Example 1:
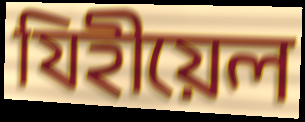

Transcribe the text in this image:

যিহীয়েল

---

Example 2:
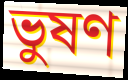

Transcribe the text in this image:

ভুষণ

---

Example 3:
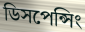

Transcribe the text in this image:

ডিসপেন্সিং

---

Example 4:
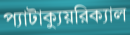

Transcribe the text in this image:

প্যাটাক্যুয়রিক্যাল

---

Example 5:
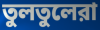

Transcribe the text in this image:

তুলতুলেরা